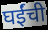
घईंची